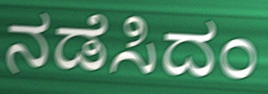
ನಡೆಸಿದಂ